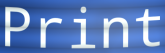
Print